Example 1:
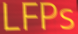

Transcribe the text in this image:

LFPs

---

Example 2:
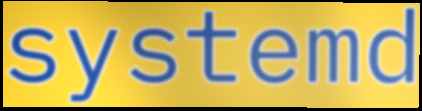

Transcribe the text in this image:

systemd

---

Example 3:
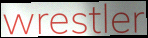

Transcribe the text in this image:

wrestler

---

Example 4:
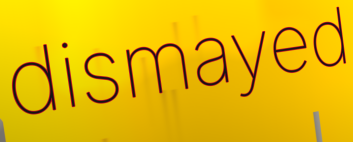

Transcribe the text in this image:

dismayed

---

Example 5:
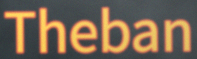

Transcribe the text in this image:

Theban